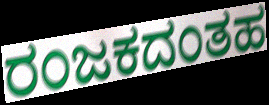
ರಂಜಕದಂತಹ